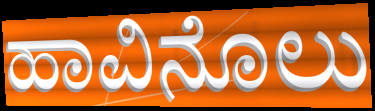
ಹಾವಿನೊಲು